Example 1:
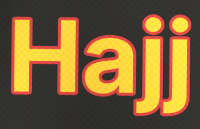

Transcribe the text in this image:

Hajj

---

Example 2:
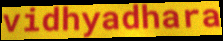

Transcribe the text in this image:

vidhyadhara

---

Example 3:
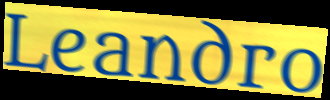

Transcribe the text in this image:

Leandro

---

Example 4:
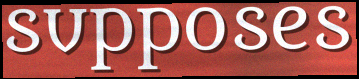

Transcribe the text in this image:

supposes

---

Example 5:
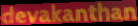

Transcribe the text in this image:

devakanthan